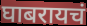
घाबरायचं